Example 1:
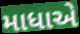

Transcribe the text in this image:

માધાએ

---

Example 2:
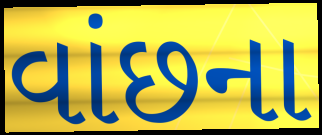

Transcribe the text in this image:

વાંછના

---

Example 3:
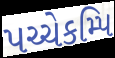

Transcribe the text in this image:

પચ્ચેકમ્પિ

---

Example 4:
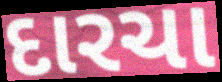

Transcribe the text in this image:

દારચા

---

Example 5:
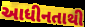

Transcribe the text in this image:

આધીનતાથી